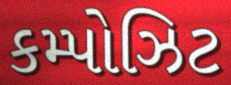
કમ્પોઝિટ